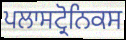
ਪਲਾਸਟ੍ਰੋਨਿਕਸ